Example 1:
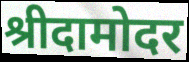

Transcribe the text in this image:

श्रीदामोदर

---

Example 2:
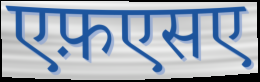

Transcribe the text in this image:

एफ़एसए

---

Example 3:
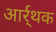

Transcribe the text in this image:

आर्र्थक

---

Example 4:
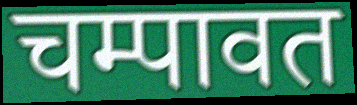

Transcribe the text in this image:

चम्पावत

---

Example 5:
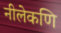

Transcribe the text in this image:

नीलेकणि